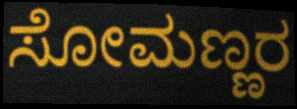
ಸೋಮಣ್ಣರ